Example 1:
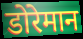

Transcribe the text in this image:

डोरेमान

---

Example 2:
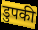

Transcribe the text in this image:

डुपकी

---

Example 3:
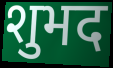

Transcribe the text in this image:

शुभद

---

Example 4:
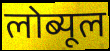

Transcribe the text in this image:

लोब्यूल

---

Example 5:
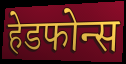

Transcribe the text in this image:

हेडफोन्स